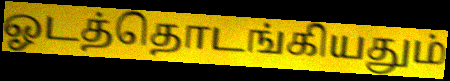
ஓடத்தொடங்கியதும்